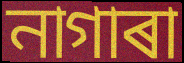
নাগাৰা